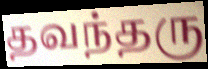
தவந்தரு